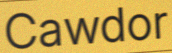
Cawdor